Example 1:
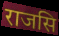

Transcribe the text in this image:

राजसि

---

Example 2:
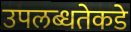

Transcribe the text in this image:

उपलब्धतेकडे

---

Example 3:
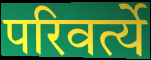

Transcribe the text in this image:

परिवर्त्ये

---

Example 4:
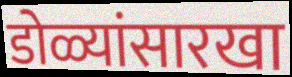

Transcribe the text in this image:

डोळ्यांसारखा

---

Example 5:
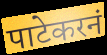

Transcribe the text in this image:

पाटेकरनं